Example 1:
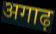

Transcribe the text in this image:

अगाढ़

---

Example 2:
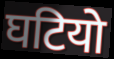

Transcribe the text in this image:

घटियो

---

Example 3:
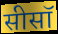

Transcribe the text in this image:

सीसॉ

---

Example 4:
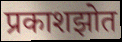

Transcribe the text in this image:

प्रकाशझोत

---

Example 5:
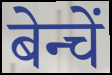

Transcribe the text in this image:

बेन्चें